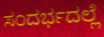
ಸಂದರ್ಭದಲ್ಲೆ